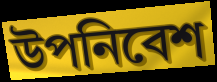
উপনিবেশ